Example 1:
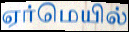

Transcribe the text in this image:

ஏர்மெயில்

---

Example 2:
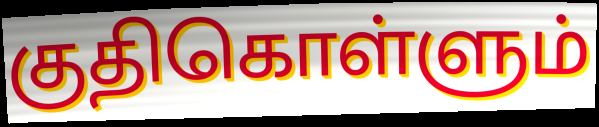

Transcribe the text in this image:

குதிகொள்ளும்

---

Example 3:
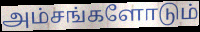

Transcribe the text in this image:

அம்சங்களோடும்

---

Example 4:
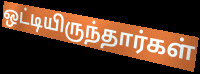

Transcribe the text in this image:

ஒட்டியிருந்தார்கள்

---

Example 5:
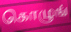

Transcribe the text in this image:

கொழுங்